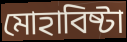
মোহাবিষ্টা